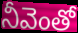
నీవెంతో